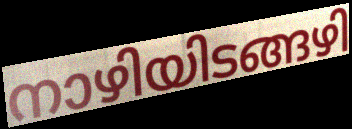
നാഴിയിടങ്ങഴി